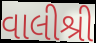
વાલીશ્રી